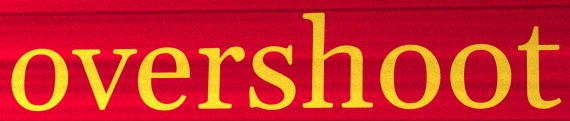
overshoot